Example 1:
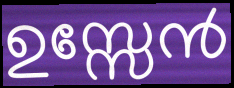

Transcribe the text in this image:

ഉസ്സേൻ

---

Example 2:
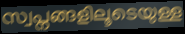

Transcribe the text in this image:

സ്വപ്നങ്ങളിലൂടെയുള്ള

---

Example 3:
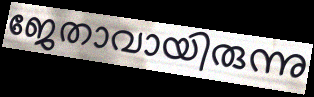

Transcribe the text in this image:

ജേതാവായിരുന്നു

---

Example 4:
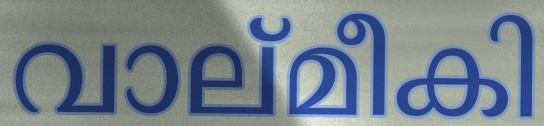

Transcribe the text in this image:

വാല്മീകി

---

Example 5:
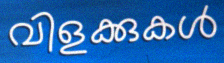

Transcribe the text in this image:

വിളക്കുകൾ